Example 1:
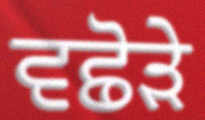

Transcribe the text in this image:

ਵਛੋੜੇ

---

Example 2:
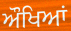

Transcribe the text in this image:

ਔਖਿਆਂ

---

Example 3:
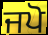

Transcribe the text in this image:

ਜਪੋ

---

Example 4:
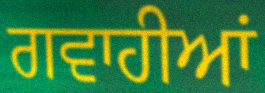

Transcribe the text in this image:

ਗਵਾਹੀਆਂ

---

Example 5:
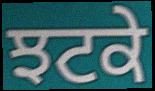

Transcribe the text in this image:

ਝਟਕੇ